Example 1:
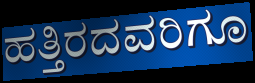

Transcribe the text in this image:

ಹತ್ತಿರದವರಿಗೂ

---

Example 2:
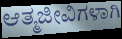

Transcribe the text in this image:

ಆತ್ಮಜೀವಿಗಳಾಗಿ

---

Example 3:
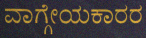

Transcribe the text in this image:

ವಾಗ್ಗೇಯಕಾರರ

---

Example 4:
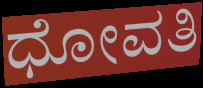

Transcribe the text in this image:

ಧೋವತಿ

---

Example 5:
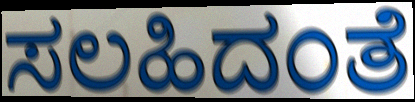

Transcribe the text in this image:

ಸಲಹಿದಂತೆ